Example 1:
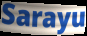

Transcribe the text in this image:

Sarayu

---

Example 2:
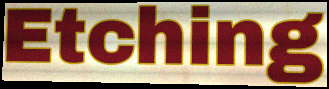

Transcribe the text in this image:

Etching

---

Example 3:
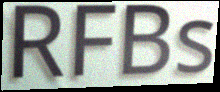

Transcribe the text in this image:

RFBs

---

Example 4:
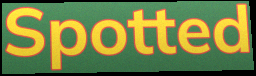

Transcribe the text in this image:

Spotted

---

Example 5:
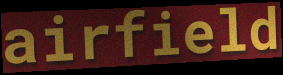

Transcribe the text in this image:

airfield